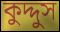
কুদ্দুস